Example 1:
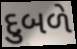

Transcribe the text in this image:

દુબળે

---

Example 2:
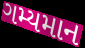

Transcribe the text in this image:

ગમ્યમાન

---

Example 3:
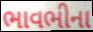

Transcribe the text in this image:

ભાવભીના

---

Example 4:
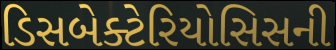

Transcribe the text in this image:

ડિસબેક્ટેરિયોસિસની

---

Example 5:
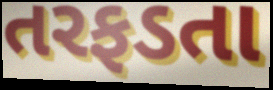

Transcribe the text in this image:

તરફડતા